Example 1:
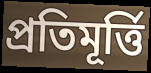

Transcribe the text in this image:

প্ৰতিমূৰ্ত্তি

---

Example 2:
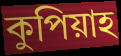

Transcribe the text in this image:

কুপিয়াহ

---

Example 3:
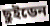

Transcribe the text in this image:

ছুইডেন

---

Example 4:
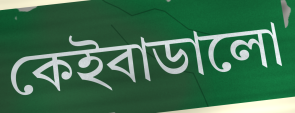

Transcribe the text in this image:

কেইবাডালো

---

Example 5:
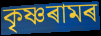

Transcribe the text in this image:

কৃষ্ণৰামৰ